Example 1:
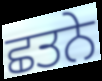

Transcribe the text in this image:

ਛਤਨੇ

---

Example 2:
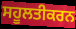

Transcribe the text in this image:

ਸਹੂਲਤੀਕਰਨ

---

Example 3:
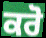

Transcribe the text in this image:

ਕਰੋ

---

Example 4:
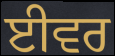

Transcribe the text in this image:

ਈਵਰ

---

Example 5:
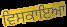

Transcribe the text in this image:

ਵਿਸਕਾਇਆ